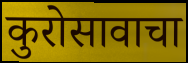
कुरोसावाचा